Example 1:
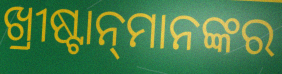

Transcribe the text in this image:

ଖ୍ରୀଷ୍ଟାନ୍‌ମାନଙ୍କର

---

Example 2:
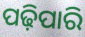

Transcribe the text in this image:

ପଢ଼ିପାରି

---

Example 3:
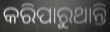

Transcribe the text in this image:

କରିପାରୁଥାନ୍ତି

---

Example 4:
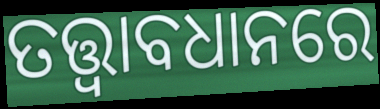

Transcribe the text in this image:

ତତ୍ତ୍ୱାବଧାନରେ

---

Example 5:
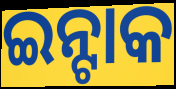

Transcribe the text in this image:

ଇନ୍ଟାକ